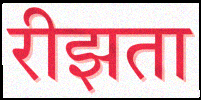
रीझता